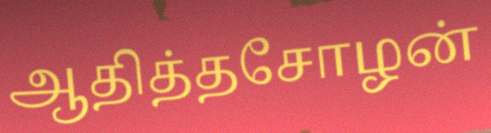
ஆதித்தசோழன்